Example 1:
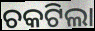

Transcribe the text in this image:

ଚକଟିଲା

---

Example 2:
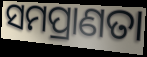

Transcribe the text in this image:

ସମପ୍ରାଣତା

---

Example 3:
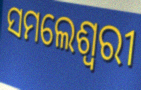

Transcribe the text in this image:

ସମଲେଶ୍ୱରୀ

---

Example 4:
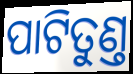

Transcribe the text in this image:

ପାଟିତୁଣ୍ତ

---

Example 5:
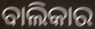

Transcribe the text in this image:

ବାଲିକାର